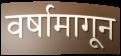
वर्षामागून